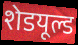
शेडयूल्ड